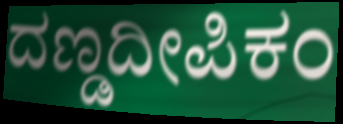
ದಣ್ಡದೀಪಿಕಂ